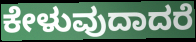
ಕೇಳುವುದಾದರೆ